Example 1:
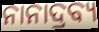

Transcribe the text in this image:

ନାନାଦ୍ରବ୍ୟ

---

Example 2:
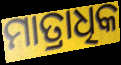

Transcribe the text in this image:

ମାତ୍ରାଧିକ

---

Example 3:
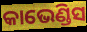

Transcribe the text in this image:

କାଭେଣ୍ଡିସ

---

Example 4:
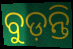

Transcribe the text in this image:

ବୁଡ଼ନ୍ତି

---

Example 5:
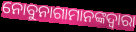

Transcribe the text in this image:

ନୋବୁନାଗାମାନଙ୍କଦ୍ୱାରା